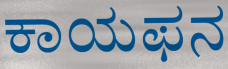
ಕಾಯಫನ